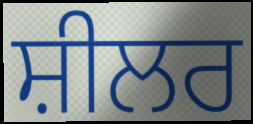
ਸ਼ੀਲਰ